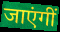
जाएंगीं